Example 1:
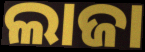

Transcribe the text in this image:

ଲାଜା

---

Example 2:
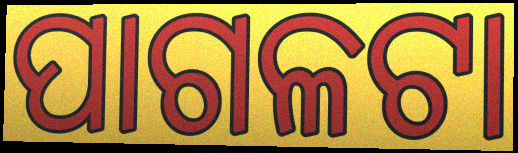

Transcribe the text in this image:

ପାଗଳଟା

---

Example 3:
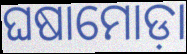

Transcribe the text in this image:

ଘଷାମୋଡ଼ା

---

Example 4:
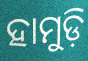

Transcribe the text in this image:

ହାମୁଡ଼ି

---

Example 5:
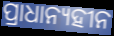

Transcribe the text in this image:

ପ୍ରାଧାନ୍ୟହୀନ